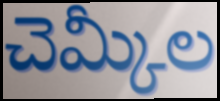
చెమ్కీల